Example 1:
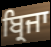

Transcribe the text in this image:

ਬ੍ਰਿਜਾ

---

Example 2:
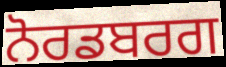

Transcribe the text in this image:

ਨੋਰਡਬਰਗ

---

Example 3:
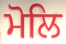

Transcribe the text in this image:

ਮੋਲਿ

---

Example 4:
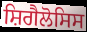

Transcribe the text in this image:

ਸ਼ਿਗੈਲੋਸਿਸ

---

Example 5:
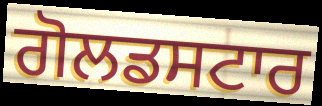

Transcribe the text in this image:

ਗੋਲਡਸਟਾਰ